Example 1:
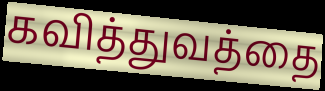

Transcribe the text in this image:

கவித்துவத்தை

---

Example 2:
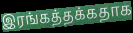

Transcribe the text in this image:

இரங்கத்தக்கதாக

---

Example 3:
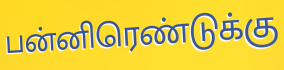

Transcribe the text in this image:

பன்னிரெண்டுக்கு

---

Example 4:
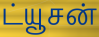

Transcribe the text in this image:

ட்யூசன்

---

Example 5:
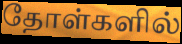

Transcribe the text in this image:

தோள்களில்